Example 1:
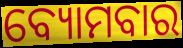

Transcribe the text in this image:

ବ୍ୟୋମବାର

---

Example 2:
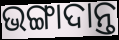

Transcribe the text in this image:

ଭଙ୍ଗାଦାନ୍ତ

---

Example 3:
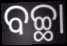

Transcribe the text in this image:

ବଚ୍ଛା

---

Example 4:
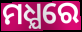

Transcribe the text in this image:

ମଧ୍ଯରେ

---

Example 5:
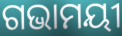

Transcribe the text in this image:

ଗଭାମୟୀ